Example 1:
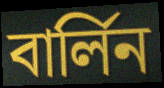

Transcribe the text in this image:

বাৰ্লিন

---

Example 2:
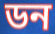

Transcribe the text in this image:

ডন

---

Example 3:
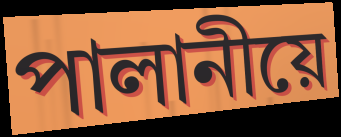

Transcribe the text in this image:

পালানীয়ে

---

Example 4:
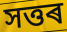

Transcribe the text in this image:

সত্তৰ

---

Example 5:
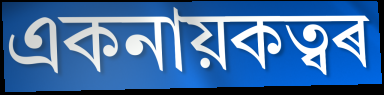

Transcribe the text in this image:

একনায়কত্বৰ